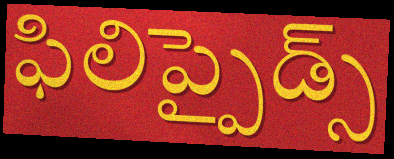
ఫిలిప్పైడ్స్